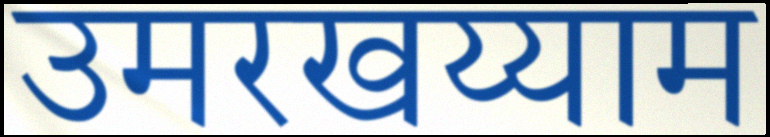
उमरखय्याम